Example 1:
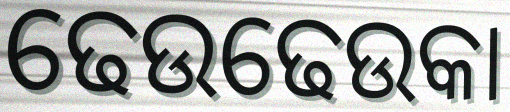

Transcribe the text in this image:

ଢେଉଢେଉକା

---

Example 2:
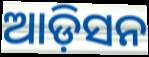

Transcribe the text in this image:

ଆଡ଼ିସନ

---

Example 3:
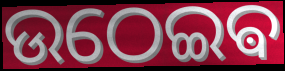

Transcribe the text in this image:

ଉଠେଇଵ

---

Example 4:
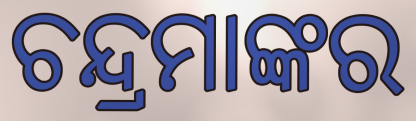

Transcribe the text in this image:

ଚନ୍ଦ୍ରମାଙ୍କର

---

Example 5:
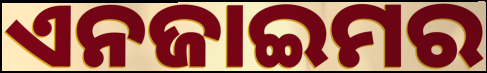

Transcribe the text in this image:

ଏନଜାଇମର